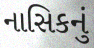
નાસિકનું